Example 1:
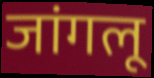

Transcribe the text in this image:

जांगलू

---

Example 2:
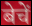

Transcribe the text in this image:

बेचें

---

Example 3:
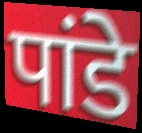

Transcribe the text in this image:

पांडे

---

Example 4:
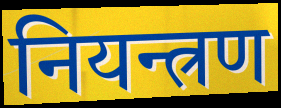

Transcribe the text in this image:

नियन्त्रण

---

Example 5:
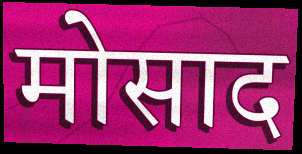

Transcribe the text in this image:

मोसाद